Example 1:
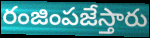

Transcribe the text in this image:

రంజింపజేస్తారు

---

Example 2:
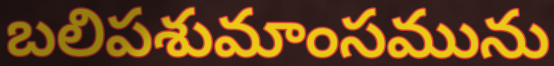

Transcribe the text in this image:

బలిపశుమాంసమును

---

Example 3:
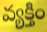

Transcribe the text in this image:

వ్యక్తిం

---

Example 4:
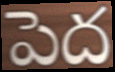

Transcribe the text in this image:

పెద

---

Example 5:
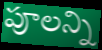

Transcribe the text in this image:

పూలన్ని